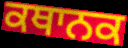
ਕਥਾਨਕ